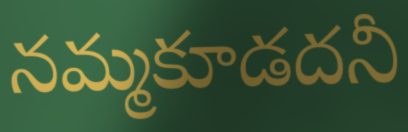
నమ్మకూడదనీ